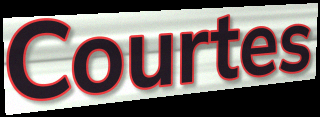
Courtes